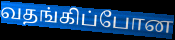
வதங்கிப்போன